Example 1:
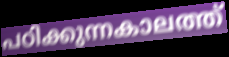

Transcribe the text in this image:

പഠിക്കുന്നകാലത്ത്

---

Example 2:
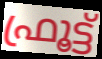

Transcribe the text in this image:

ഫ്രൂട്ട്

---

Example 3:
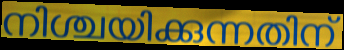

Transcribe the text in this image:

നിശ്ചയിക്കുന്നതിന്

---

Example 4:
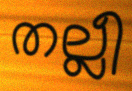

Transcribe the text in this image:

തല്ലീ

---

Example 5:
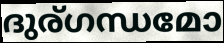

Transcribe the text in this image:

ദുര്ഗന്ധമോ